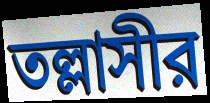
তল্লাসীর